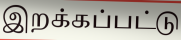
இறக்கப்பட்டு